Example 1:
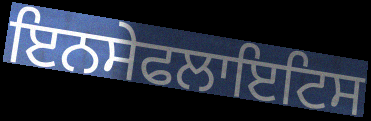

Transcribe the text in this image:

ਇਨਸੇਫਲਾਇਟਿਸ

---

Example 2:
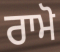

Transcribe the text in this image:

ਰਾਮੋ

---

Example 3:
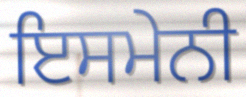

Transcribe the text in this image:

ਇਸਮੇਨੀ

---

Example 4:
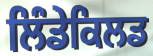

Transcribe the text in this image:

ਲਿੰਡੇਕਿਲਡ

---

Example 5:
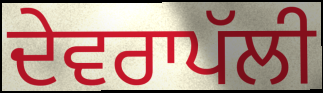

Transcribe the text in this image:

ਦੇਵਰਾਪੱਲੀ